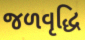
જળવૃદ્ધિ